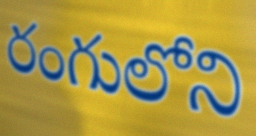
రంగులోని